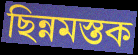
ছিন্নমস্তক